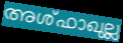
അശ്ഫാഖുല്ല